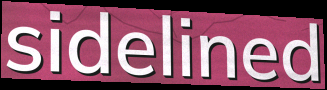
sidelined